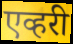
एव्हरी